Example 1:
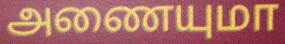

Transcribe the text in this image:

அணையுமா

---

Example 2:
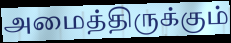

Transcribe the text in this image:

அமைத்திருக்கும்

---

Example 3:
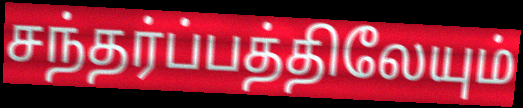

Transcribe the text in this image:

சந்தர்ப்பத்திலேயும்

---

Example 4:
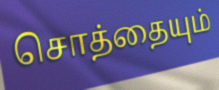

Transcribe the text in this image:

சொத்தையும்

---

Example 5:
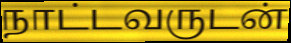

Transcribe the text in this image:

நாட்டவருடன்